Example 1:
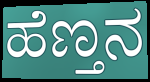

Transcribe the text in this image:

ಹೆಣ್ತನ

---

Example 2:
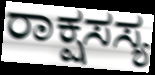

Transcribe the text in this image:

ರಾಕ್ಷಸಸ್ಯ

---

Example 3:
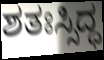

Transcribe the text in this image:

ಶತಃಸ್ಸಿದ್ಧ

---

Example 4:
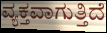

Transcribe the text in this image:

ವ್ಯಕ್ತವಾಗುತ್ತಿದೆ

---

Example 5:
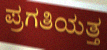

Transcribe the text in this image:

ಪ್ರಗತಿಯತ್ತ